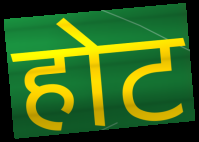
होट